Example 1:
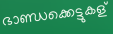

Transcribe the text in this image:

ഭാണ്ഡക്കെട്ടുകള്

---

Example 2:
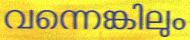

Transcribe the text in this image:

വന്നെങ്കിലും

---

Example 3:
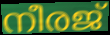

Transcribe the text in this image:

നീരജ്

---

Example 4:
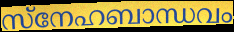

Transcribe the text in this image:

സ്നേഹബാന്ധവം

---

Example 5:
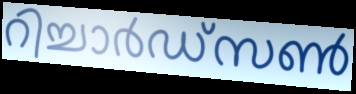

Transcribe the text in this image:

റിച്ചാർഡ്സൺ